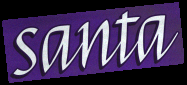
santa